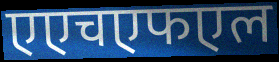
एएचएफएल